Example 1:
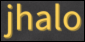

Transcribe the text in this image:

jhalo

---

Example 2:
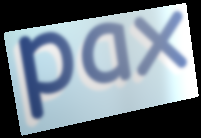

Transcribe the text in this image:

pax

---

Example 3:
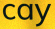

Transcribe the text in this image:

cay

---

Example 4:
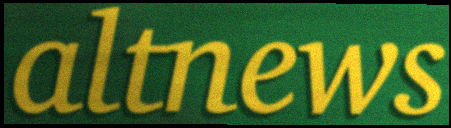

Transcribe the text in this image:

altnews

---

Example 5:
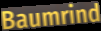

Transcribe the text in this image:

Baumrind